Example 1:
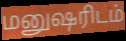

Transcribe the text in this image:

மனுஷரிடம்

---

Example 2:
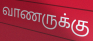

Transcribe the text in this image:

வாணருக்கு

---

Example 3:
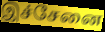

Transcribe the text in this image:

இச்சேனை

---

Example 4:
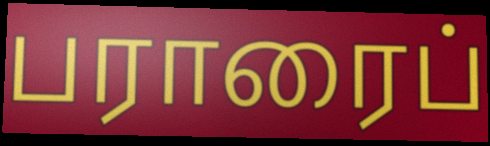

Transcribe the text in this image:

பராரைப்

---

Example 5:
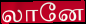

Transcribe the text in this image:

லானே